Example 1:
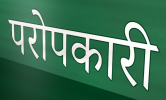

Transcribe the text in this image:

परोपकारी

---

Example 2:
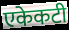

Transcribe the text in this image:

एकेकटी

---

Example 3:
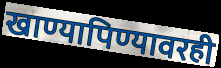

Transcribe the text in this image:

खाण्यापिण्यावरही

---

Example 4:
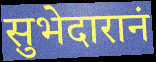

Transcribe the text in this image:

सुभेदारानं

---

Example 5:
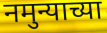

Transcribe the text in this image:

नमुन्याच्या